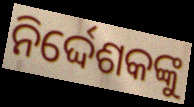
ନିର୍ଦ୍ଦେଶକଙ୍କୁ